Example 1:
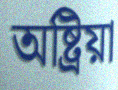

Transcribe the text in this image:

অষ্ট্ৰিয়া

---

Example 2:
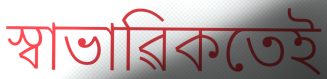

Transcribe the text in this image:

স্বাভাৱিকতেই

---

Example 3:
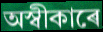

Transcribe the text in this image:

অস্বীকাৰে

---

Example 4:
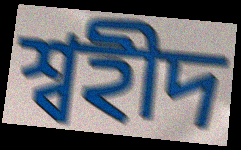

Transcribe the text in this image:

শ্বহীদ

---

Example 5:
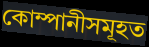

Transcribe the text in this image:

কোম্পানীসমূহত